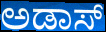
ಅಡಾಸ್